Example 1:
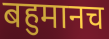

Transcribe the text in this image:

बहुमानच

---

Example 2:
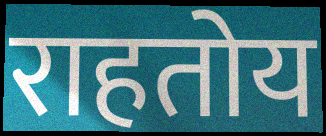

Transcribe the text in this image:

राहतोय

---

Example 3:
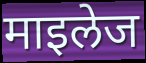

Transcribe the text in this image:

माइलेज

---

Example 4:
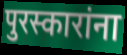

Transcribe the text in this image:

पुरस्कारांना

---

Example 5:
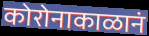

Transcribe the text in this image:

कोरोनाकाळानं